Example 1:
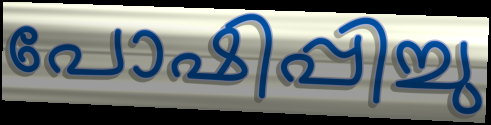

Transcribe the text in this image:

പോഷിപ്പിച്ചു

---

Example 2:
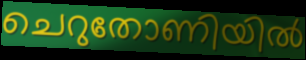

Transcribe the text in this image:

ചെറുതോണിയിൽ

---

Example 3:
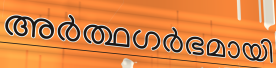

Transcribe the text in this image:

അർത്ഥഗർഭമായി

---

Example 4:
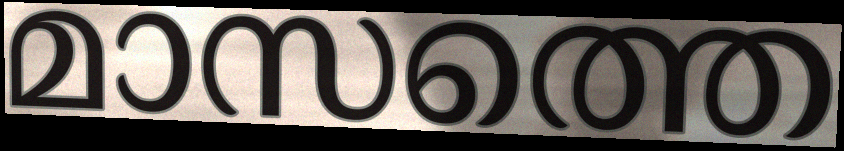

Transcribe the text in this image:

മാസത്തെ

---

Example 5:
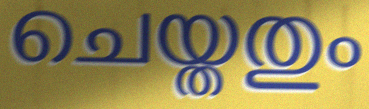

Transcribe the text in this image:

ചെയ്തതും